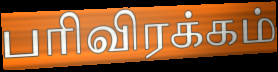
பரிவிரக்கம்